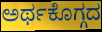
ಅರ್ಥಕೊಗ್ಗದ